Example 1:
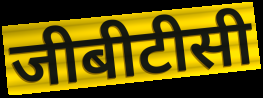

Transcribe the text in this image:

जीबीटीसी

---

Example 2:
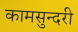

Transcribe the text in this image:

कामसुन्दरी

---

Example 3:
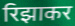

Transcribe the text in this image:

रिझाकर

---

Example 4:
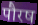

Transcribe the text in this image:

पौरष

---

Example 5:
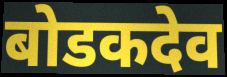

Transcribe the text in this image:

बोडकदेव